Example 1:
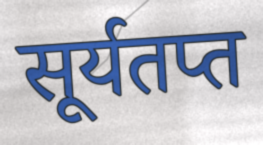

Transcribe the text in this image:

सूर्यतप्त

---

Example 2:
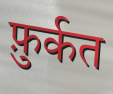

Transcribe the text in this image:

फ़ुर्कत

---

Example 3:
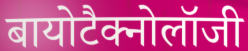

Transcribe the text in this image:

बायोटैक्नोलॉजी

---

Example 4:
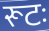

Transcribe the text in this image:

रूटः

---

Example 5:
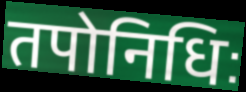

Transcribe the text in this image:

तपोनिधिः